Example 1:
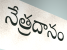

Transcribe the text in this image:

నేత్రదానం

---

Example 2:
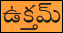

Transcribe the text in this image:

ఉక్తమ్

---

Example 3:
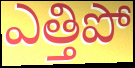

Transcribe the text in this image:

ఎత్తిపో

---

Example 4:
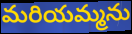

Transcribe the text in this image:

మరియమ్మను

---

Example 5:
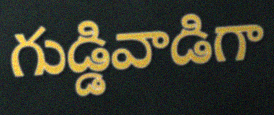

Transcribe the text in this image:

గుడ్డివాడిగా